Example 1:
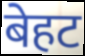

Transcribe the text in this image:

बेहट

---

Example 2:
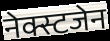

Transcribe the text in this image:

नेक्स्टजेन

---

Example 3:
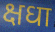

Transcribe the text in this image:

क्षधा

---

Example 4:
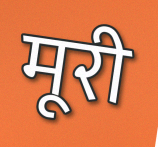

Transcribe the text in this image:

मूरी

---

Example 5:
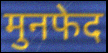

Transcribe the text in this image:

मुनफेद